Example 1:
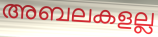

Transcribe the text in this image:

അബലകളല്ല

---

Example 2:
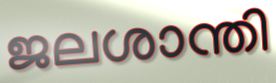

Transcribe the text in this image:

ജലശാന്തി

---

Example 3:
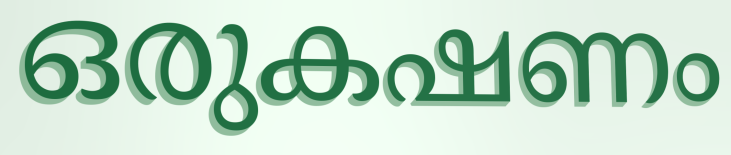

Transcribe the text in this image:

ഒരുകഷണം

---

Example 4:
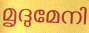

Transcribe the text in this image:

മൃദുമേനി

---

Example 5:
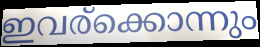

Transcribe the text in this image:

ഇവര്ക്കൊന്നും